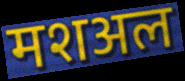
मशअल